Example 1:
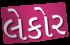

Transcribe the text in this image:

લેકોર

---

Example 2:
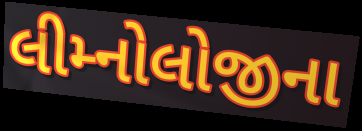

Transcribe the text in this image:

લીમ્નોલોજીના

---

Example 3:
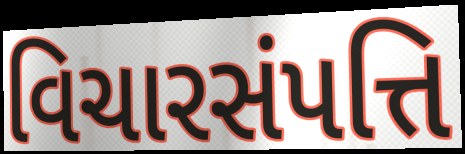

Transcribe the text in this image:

વિચારસંપત્તિ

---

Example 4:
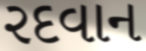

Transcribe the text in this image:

રદવાન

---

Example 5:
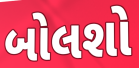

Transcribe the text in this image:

બોલશો